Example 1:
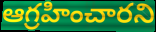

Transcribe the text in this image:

ఆగ్రహించారని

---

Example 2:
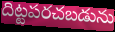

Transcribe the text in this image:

దిట్టపరచబడును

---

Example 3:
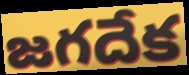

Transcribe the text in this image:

జగదేక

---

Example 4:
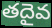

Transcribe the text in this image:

తదైవ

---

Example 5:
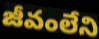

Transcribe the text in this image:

జీవంలేని